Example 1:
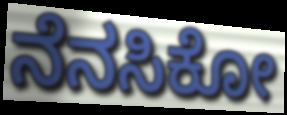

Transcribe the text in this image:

ನೆನಸಿಕೋ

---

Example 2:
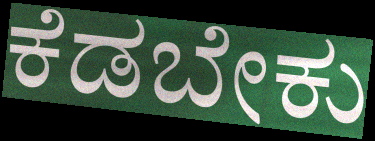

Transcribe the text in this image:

ಕೆಡಬೇಕು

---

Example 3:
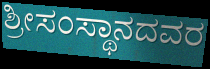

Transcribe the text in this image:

ಶ್ರೀಸಂಸ್ಥಾನದವರ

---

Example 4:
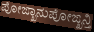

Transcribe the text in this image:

ಪೋಙ್ಖಾನುಪೋಙ್ಖನ್ತಿ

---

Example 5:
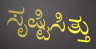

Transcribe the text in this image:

ಸೃಷ್ಟಿಸಿತ್ತು